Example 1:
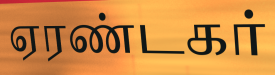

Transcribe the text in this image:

ஏரண்டகர்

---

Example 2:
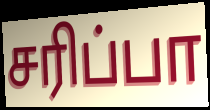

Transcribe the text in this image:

சரிப்பா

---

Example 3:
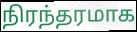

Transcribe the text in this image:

நிரந்தரமாக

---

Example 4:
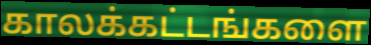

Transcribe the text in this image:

காலக்கட்டங்களை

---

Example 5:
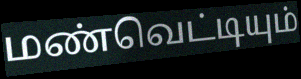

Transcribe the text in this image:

மண்வெட்டியும்